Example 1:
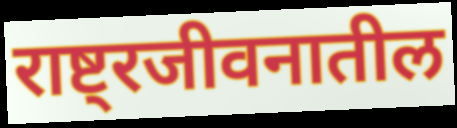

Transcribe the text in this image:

राष्ट्रजीवनातील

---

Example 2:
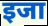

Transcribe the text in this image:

इजा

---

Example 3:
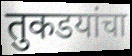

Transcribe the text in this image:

तुकडयांचा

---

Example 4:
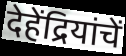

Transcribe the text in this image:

देहेंद्रियांचें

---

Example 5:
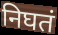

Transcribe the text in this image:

निघतं